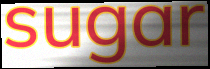
sugar